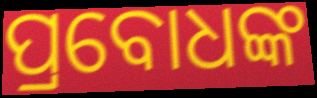
ପ୍ରବୋଧଙ୍କ